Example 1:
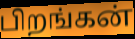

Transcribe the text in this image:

பிறங்கன்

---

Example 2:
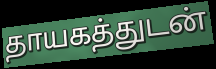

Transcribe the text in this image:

தாயகத்துடன்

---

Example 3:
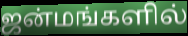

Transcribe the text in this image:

ஜன்மங்களில்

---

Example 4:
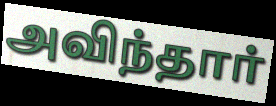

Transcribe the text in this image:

அவிந்தார்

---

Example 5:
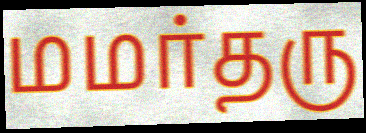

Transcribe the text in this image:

மமர்தரு